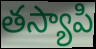
తస్యాపి